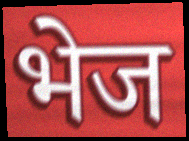
भेज